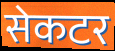
सेकटर